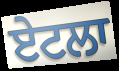
ਏਟਲਾ